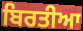
ਬਿਰਤੀਆ